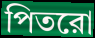
পিতরো